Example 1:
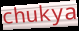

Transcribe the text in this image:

chukya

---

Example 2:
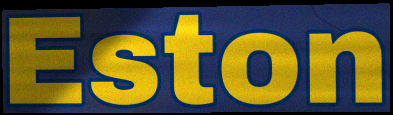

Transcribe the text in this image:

Eston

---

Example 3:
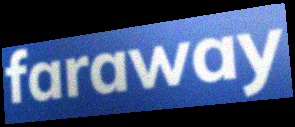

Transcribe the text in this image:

faraway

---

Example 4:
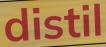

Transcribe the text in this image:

distil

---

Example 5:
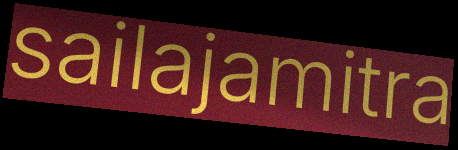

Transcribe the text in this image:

sailajamitra